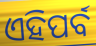
ଏହିପର୍ବ